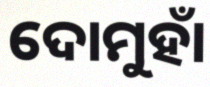
ଦୋମୁହାଁ